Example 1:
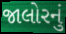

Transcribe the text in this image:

જાલોરનું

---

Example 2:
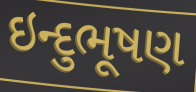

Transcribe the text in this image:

ઇન્દુભૂષણ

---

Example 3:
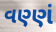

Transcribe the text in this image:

વણ્ણં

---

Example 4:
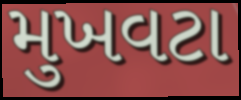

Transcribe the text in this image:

મુખવટા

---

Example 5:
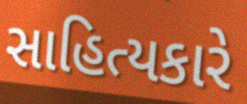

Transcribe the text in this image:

સાહિત્યકારે